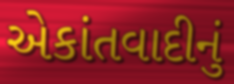
એકાંતવાદીનું